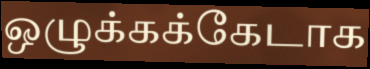
ஒழுக்கக்கேடாக